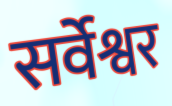
सर्वेश्वर